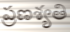
ప్రణశ్యతి